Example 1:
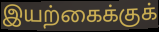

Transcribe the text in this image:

இயற்கைக்குக்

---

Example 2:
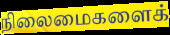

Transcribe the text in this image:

நிலைமைகளைக்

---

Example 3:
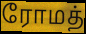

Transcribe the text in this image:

ரோமத்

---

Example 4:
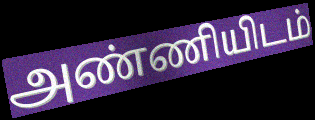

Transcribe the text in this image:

அண்ணியிடம்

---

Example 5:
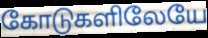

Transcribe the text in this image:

கோடுகளிலேயே